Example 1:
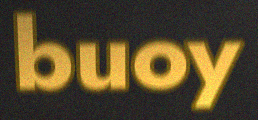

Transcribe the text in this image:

buoy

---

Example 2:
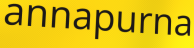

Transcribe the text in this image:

annapurna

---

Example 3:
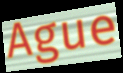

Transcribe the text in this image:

Ague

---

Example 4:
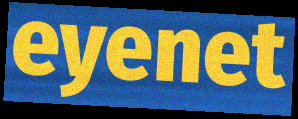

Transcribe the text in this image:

eyenet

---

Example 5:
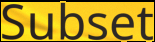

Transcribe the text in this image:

Subset